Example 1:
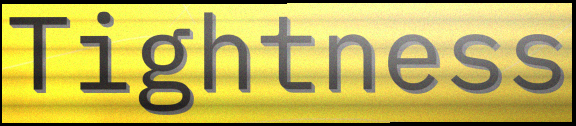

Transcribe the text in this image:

Tightness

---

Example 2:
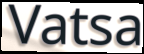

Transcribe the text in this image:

Vatsa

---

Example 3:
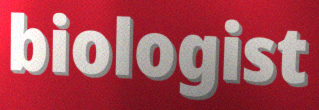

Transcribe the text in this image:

biologist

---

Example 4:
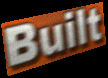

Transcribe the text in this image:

Built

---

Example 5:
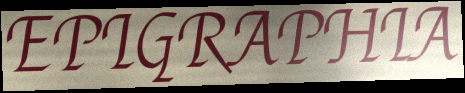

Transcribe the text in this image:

EPIGRAPHIA